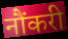
नौंकरी